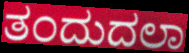
ತಂದುದಲಾ